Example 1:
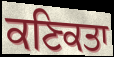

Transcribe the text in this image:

ਕਣਿਕਤਾ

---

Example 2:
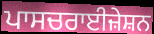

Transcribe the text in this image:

ਪਾਸਚਰਾਈਜ਼ੇਸ਼ਨ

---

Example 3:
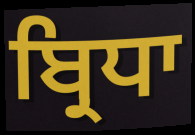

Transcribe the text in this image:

ਬ੍ਰਿਧਾ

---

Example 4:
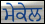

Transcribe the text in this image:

ਮੇਕੇਲ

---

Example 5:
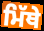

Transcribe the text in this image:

ਮਿੱਥੇ